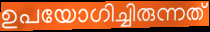
ഉപയോഗിച്ചിരുന്നത്